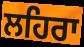
ਲਹਿਰਾ